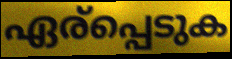
ഏര്പ്പെടുക